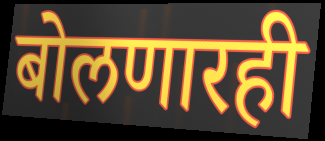
बोलणारही